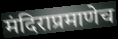
मंदिराप्रमाणेच